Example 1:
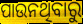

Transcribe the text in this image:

ପାଉନଥିବାରୁ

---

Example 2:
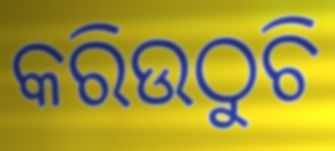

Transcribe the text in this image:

କରିଉଠୁଚି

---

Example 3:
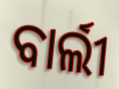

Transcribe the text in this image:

ବାର୍ଲୀ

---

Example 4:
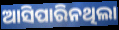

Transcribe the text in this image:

ଆସିପାରିନଥିଲା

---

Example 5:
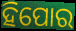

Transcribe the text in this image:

ହିପୋର